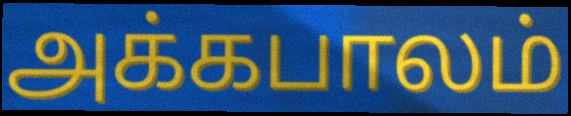
அக்கபாலம்